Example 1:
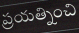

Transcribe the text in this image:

ప్రయత్నించి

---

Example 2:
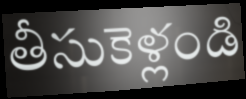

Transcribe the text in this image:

తీసుకెళ్లండి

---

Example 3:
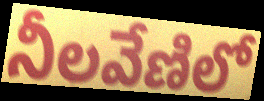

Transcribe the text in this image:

నీలవేణిలో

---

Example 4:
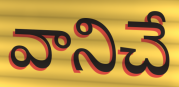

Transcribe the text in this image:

వానిచే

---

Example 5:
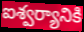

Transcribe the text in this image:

ఐశ్వర్యానికి